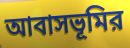
আবাসভূমির